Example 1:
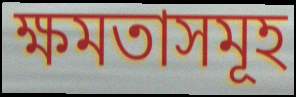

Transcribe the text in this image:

ক্ষমতাসমূহ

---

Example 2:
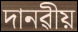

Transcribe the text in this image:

দানৱীয়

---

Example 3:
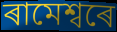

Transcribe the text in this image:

ৰামেশ্বৰে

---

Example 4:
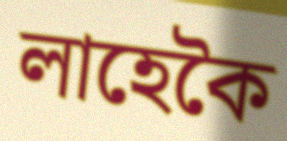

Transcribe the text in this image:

লাহেকৈ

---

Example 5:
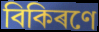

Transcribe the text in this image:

বিকিৰণে